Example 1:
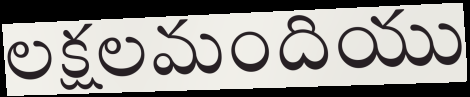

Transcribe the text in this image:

లక్షలమందియు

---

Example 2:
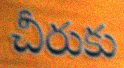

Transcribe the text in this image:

చీరుకు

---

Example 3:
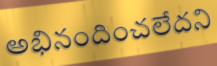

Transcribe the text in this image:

అభినందించలేదని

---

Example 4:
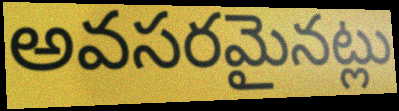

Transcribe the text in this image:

అవసరమైనట్లు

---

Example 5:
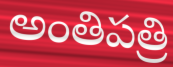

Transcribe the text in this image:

అంతిపత్రి